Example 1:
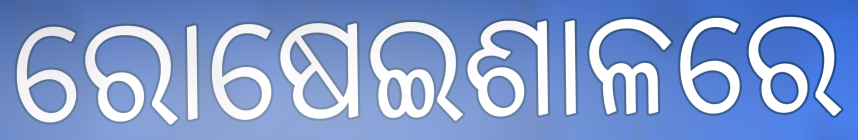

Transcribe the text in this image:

ରୋଷେଇଶାଳରେ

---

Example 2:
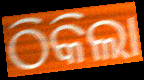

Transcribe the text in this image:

ଠିକିଲା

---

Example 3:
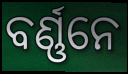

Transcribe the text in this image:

ବର୍ଣ୍ଣନେ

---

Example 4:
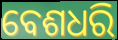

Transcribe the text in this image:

ବେଶଧରି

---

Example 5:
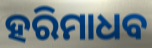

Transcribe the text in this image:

ହରିମାଧବ